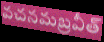
వచనమబ్రవీత్